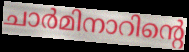
ചാർമിനാറിന്റെ